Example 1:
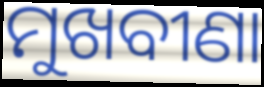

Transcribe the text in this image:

ମୁଖବୀଣା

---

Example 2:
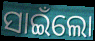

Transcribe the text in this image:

ସାଇଁଲୋ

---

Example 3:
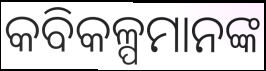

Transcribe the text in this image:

କବିକଳ୍ପମାନଙ୍କ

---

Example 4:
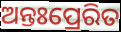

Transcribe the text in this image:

ଅନ୍ତଃପ୍ରେରିତ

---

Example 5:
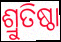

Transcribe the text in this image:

ଶ୍ରୁତିଷ୍ଠା